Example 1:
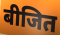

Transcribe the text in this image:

बीजित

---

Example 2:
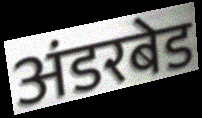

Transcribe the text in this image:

अंडरबेड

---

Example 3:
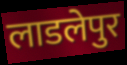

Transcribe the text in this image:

लाडलेपुर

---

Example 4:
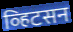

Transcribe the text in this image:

व्हिटसन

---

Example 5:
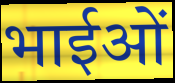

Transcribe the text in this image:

भाईओं